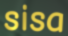
sisa